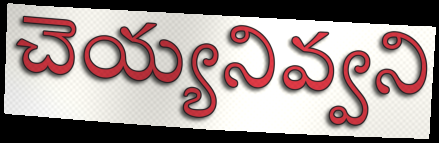
చెయ్యనివ్వని